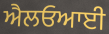
ਐਲਓਆਈ